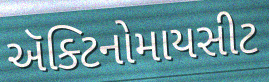
ઍક્ટિનોમાયસીટ